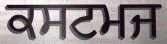
ਕਸਟਮਜ